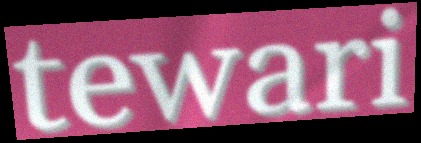
tewari